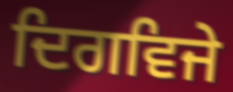
ਦਿਗਵਿਜੇ